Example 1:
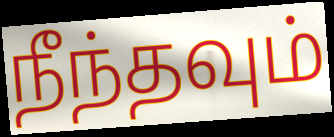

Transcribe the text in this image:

நீந்தவும்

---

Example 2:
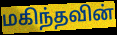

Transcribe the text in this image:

மகிந்தவின்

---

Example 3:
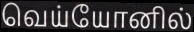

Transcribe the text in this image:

வெய்யோனில்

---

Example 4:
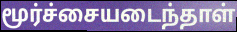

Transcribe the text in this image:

மூர்ச்சையடைந்தாள்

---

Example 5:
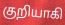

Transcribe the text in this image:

குறியாகி